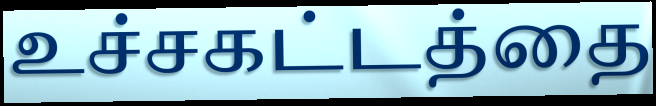
உச்சகட்டத்தை